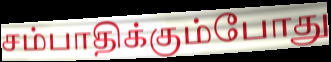
சம்பாதிக்கும்போது